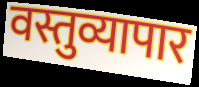
वस्तुव्यापार